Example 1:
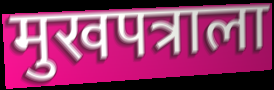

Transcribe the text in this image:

मुखपत्राला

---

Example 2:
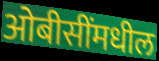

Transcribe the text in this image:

ओबीसींमधील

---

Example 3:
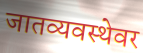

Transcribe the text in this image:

जातव्यवस्थेवर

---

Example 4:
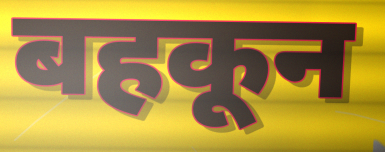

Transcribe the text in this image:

बहकून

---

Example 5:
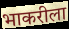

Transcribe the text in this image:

भाकरीला